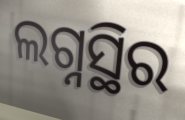
ଲଗ୍ନସ୍ଥିର